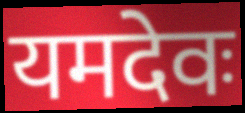
यमदेवः